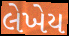
લેખેય